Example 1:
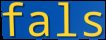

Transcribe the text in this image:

fals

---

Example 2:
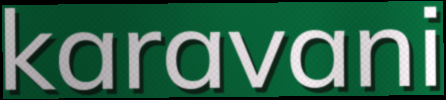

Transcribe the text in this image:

karavani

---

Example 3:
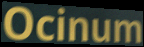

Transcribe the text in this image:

Ocinum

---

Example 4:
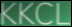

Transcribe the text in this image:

KKCL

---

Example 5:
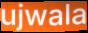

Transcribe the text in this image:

ujwala